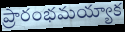
ప్రారంభమయ్యాక